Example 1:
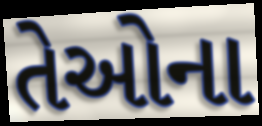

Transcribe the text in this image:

તેઓના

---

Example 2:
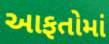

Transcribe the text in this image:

આફતોમાં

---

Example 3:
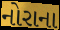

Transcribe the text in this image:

નોરાના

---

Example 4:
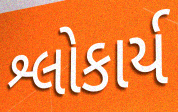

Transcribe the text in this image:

શ્લોકાર્ય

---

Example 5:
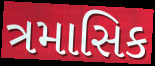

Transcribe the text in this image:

ત્રમાસિક